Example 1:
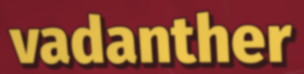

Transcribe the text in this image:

vadanther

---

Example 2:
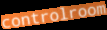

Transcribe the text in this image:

controlroom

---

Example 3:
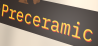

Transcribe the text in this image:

Preceramic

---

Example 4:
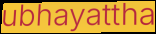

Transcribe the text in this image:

ubhayattha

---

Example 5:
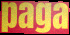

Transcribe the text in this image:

paga